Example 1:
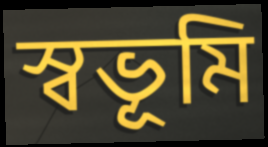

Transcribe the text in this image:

স্বভূমি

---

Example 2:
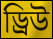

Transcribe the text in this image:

ড্রিউ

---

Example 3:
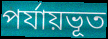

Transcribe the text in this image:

পর্যায়ভূত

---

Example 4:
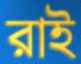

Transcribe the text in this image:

রাই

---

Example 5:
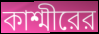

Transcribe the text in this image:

কাশ্মীরের